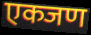
एकजण